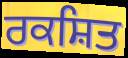
ਰਕਸ਼ਿਤ